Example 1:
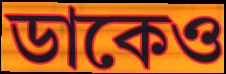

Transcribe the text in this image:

ডাকেও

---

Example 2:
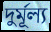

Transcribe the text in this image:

দুর্মূল্য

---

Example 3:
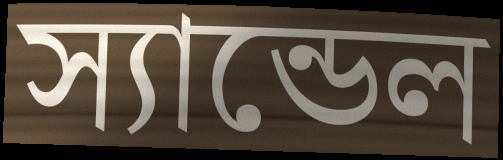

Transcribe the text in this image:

স্যান্ডেল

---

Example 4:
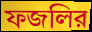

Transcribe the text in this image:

ফজলির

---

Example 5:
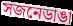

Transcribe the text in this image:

সজনেডাঙা